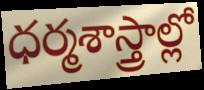
ధర్మశాస్త్రాల్లో